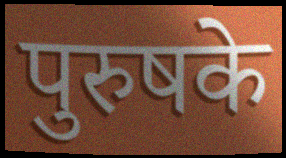
पुरुषके